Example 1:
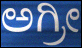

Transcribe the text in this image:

ಅಗ್ರೀ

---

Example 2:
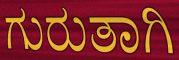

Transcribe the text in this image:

ಗುರುತಾಗಿ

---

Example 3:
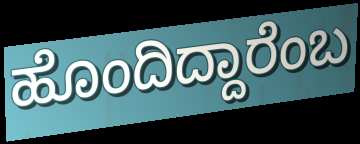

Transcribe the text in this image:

ಹೊಂದಿದ್ದಾರೆಂಬ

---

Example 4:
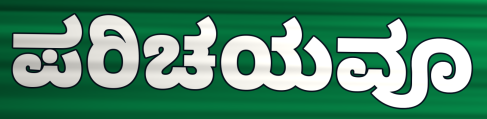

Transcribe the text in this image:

ಪರಿಚಯವೂ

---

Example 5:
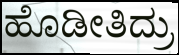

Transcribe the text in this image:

ಹೊಡೀತಿದ್ರು